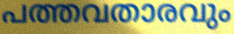
പത്തവതാരവും